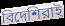
বিদেশিরাই